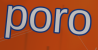
poro